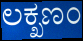
ಲಕ್ಖಣಂ